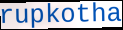
rupkotha